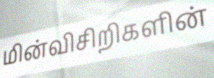
மின்விசிறிகளின்